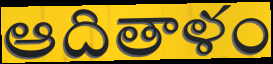
ఆదితాళం